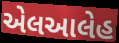
એલઆલેહ